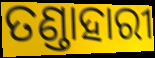
ତଣ୍ଡାହାରୀ